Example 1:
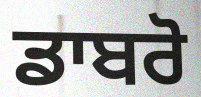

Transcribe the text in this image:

ਡਾਬਰੋ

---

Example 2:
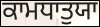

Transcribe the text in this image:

ਕਾਮਧਾਤੁਯਾ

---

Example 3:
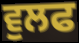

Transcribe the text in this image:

ਵੁਲਫ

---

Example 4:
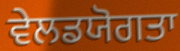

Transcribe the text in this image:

ਵੇਲਡਯੋਗਤਾ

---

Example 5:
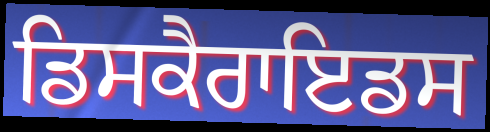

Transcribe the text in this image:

ਡਿਸਕੈਰਾਇਡਸ